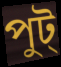
পুট্